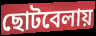
ছোটবেলায়